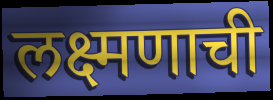
लक्ष्मणाची